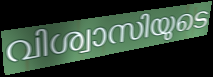
വിശ്വാസിയുടെ